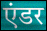
एंडर